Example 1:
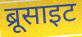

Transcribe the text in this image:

ब्रूसाइट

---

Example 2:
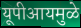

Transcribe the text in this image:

यूपीआयमुळे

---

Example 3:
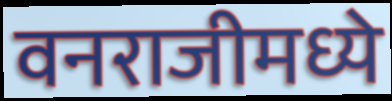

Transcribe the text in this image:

वनराजीमध्ये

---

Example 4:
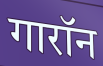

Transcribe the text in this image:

गारॉन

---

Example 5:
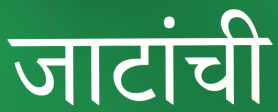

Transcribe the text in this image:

जाटांची